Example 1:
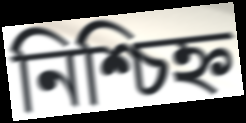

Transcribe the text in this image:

নিশ্চিহ্ন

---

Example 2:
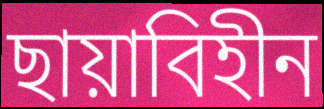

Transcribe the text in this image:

ছায়াবিহীন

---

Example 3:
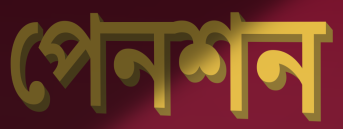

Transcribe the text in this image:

পেনশন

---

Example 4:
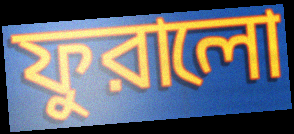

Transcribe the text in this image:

ফুরালো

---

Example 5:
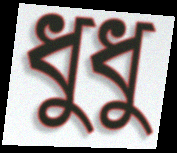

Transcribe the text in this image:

ধুধু